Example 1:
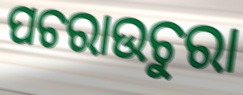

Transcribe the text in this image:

ପଚରାଉଚୁରା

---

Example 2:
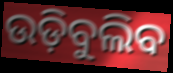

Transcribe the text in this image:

ଉଡ଼ିବୁଲିବ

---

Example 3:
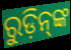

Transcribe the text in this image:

ରୁଡ଼ିନ୍‌ଙ୍କ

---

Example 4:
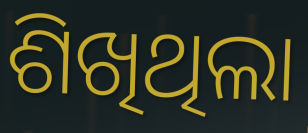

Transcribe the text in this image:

ଶିଖିଥିଲା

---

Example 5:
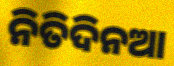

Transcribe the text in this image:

ନିତିଦିନଆ